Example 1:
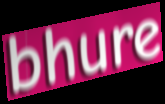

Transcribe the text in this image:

bhure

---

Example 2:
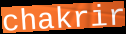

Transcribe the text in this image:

chakrir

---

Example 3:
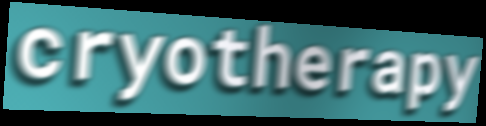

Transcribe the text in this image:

cryotherapy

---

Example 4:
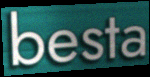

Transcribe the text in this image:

besta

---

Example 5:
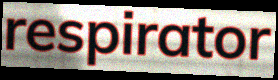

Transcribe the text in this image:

respirator